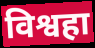
विश्वहा